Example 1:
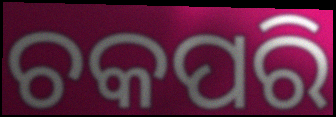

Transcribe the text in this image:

ଚକପରି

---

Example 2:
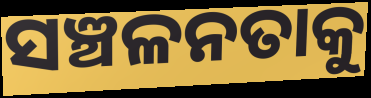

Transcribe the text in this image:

ସଞ୍ଚଳନତାକୁ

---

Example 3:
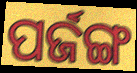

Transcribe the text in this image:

ପର୍ଜଙ୍ଗ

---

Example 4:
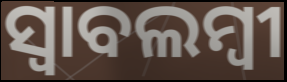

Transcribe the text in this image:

ସ୍ଵାବଲମ୍ଵୀ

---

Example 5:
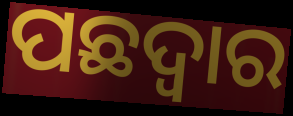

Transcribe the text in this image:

ପଛଦ୍ୱାର